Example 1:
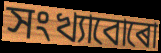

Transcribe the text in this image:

সংখ্যাবোৰো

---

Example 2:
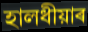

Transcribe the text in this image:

হালধীয়াৰ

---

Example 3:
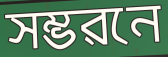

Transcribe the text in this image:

সম্ভৱনে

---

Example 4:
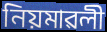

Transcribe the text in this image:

নিয়মাৱলী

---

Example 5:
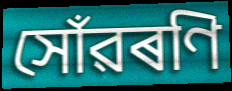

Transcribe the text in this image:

সোঁৱৰণি